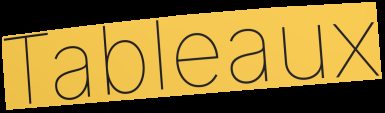
Tableaux